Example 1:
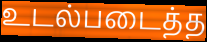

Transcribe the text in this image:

உடல்படைத்த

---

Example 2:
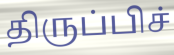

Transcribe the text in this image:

திருப்பிச்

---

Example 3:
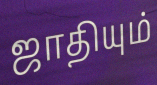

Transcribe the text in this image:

ஜாதியும்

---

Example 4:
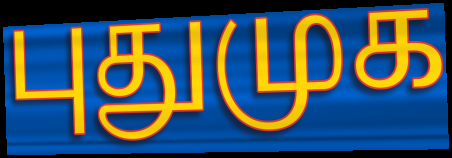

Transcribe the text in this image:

புதுமுக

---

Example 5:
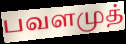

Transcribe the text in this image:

பவளமுத்